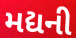
મદ્યની